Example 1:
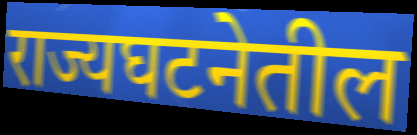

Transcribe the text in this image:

राज्यघटनेतील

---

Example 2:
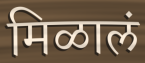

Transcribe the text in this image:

मिळालं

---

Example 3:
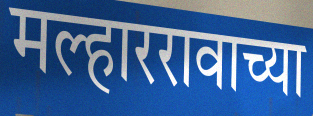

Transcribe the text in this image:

मल्हाररावाच्या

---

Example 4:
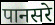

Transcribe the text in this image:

पानसरे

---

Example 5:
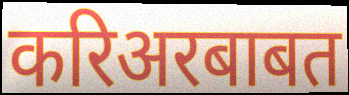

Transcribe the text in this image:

करिअरबाबत